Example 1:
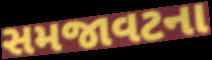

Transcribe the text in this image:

સમજાવટના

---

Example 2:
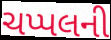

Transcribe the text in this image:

ચપ્પલની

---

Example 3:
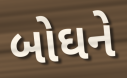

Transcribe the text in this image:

બોઘને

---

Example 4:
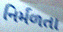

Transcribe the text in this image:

નિર્મળતા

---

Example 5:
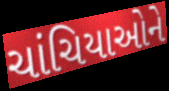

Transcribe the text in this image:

ચાંચિયાઓને